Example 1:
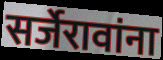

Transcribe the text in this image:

सर्जेरावांना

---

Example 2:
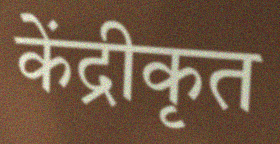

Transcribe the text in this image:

केंद्रीकृत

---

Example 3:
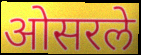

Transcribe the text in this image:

ओसरले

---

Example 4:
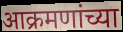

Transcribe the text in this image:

आक्रमणांच्या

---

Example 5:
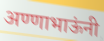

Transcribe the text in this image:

अण्णाभाऊंनी